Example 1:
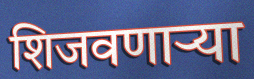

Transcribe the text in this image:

शिजवणाऱ्या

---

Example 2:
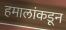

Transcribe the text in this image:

हमालांकडून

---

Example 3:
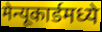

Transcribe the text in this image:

मेन्यूकार्डमध्ये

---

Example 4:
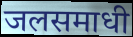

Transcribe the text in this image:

जलसमाधी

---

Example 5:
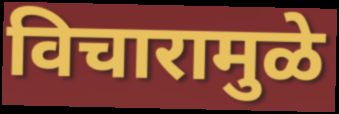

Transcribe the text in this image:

विचारामुळे